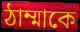
ঠাম্মাকে